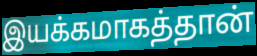
இயக்கமாகத்தான்